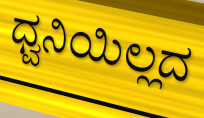
ಧ್ವನಿಯಿಲ್ಲದ